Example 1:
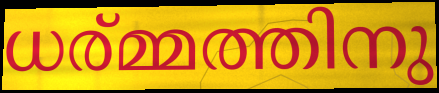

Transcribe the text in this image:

ധര്മ്മത്തിനു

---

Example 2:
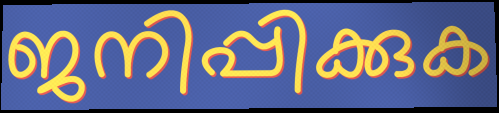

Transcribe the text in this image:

ജനിപ്പിക്കുക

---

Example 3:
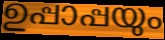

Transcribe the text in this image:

ഉപ്പാപ്പയും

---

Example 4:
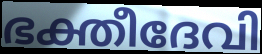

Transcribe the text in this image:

ഭക്തീദേവി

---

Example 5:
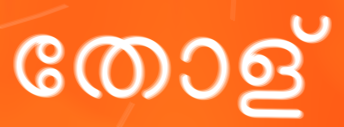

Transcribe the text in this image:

തോള്